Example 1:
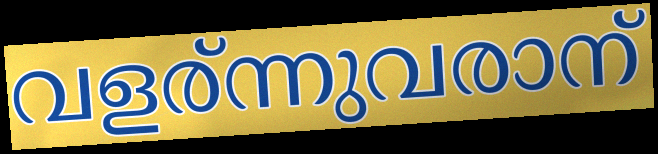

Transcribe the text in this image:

വളര്ന്നുവരാന്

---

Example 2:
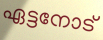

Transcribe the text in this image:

ഏട്ടനോട്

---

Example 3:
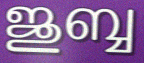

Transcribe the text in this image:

ജുബ്ബ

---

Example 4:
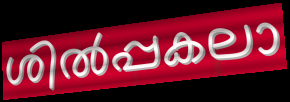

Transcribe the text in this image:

ശിൽപ്പകലാ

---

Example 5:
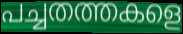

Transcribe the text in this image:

പച്ചതത്തകളെ